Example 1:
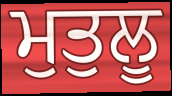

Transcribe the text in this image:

ਮੁਤੁਲੂ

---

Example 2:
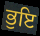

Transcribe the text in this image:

ਭੁਇ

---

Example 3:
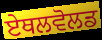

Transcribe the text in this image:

ਏਥਲਵੋਲਡ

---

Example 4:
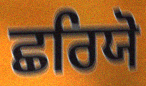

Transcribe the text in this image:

ਛਰਿਯੋ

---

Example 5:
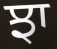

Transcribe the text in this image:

ਝਾ